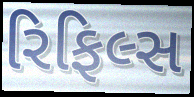
રિફિલ્સ